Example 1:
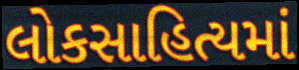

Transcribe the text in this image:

લોકસાહિત્યમાં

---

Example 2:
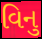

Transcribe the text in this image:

વિનુ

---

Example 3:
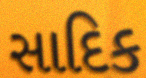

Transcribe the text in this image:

સાદિક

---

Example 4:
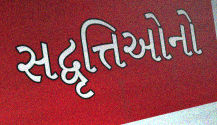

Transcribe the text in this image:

સદ્વૃત્તિઓનો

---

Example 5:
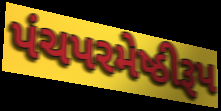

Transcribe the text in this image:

પંચપરમેષ્ઠીરૂપ